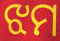
ଝମ